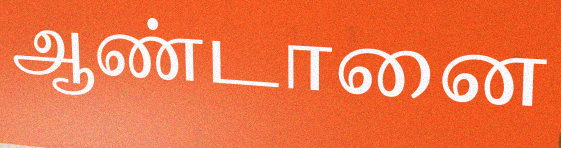
ஆண்டானை